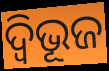
ଦ୍ବିଭୂଜ